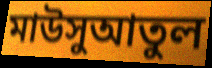
মাউসুআতুল